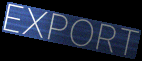
EXPORT